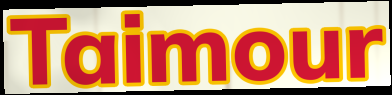
Taimour